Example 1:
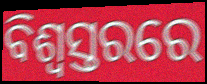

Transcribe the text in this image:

ବିଶ୍ୱସ୍ତରରେ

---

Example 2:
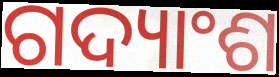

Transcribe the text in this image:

ଗଦ୍ୟାଂଶ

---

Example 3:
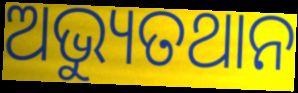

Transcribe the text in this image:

ଅଭ୍ୟୁତଥାନ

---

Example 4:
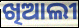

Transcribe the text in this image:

ଖିଆଲୀ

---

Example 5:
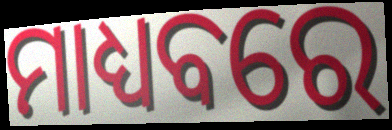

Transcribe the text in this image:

ମାଧ୍ୟବରେ